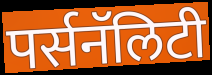
पर्सनॅलिटी